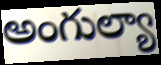
అంగుల్యా